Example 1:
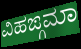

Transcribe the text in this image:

ವಿಹಙ್ಗಮಾ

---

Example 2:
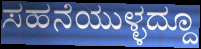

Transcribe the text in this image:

ಸಹನೆಯುಳ್ಳದ್ದೂ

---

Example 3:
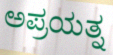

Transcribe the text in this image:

ಅಪ್ರಯತ್ನ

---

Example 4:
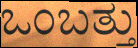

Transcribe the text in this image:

ಒಂಬತ್ತು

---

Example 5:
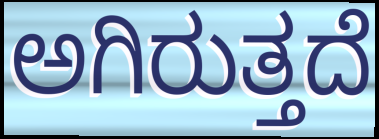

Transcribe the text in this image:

ಅಗಿರುತ್ತದೆ